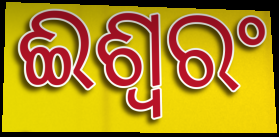
ଈଶ୍ଵରଂ